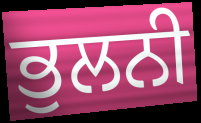
ਭੁਲਨੀ